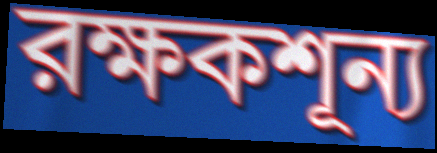
রক্ষকশূন্য